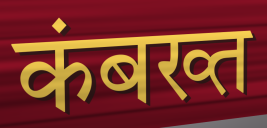
कंबख्त